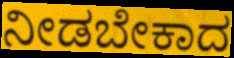
ನೀಡಬೇಕಾದ